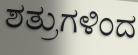
ಶತ್ರುಗಳಿಂದ